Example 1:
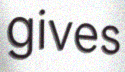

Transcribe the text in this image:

gives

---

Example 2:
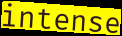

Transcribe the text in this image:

intense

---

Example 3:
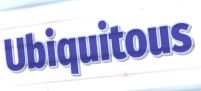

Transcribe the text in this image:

Ubiquitous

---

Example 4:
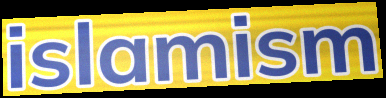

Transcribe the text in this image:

islamism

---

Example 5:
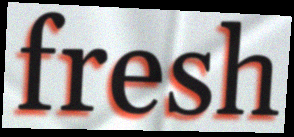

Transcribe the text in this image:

fresh